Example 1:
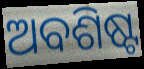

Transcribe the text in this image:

ଅବଶିଷ୍ଟ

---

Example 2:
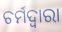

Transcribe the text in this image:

ଚର୍ମଦ୍ଵାରା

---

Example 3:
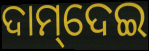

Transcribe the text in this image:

ଦାମ୍‌ଦେଇ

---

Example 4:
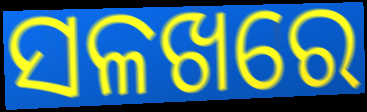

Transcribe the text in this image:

ସଳଖରେ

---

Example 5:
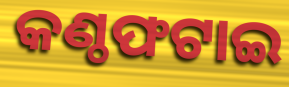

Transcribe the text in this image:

କଣ୍ଠଫଟାଇ